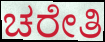
ಚರೇತಿ